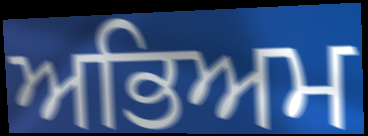
ਅਭਿਅਮ